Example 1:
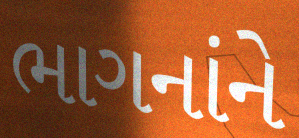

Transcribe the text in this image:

ભાગનાંને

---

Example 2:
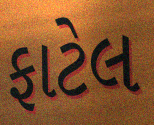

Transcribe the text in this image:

ફાટેલ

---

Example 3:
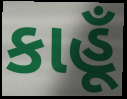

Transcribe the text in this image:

કાહૂઁ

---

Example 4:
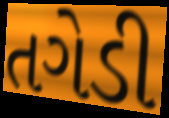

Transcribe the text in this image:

તગેડી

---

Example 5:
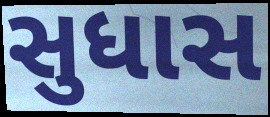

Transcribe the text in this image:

સુધાસ